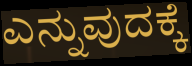
ಎನ್ನುವುದಕ್ಕೆ